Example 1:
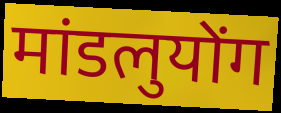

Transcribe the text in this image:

मांडलुयोंग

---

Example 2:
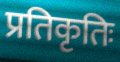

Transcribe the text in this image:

प्रतिकृतिः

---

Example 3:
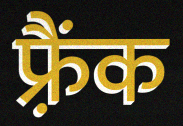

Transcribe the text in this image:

फ़्रैंक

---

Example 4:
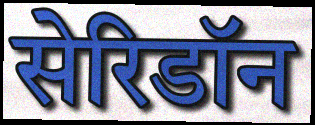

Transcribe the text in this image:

सेरिडॉन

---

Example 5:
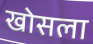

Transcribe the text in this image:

खोसला